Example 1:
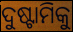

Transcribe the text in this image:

ଦୁଷ୍ଟାମିକୁ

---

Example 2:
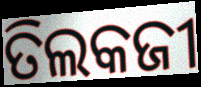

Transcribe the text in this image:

ତିଲକଜୀ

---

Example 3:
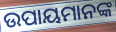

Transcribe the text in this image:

ଉପାୟମାନଙ୍କ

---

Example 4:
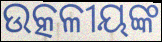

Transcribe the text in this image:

ଉତ୍କଳୀୟଙ୍କ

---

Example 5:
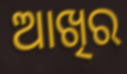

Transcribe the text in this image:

ଆଖିର